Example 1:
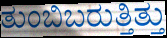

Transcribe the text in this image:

ತುಂಬಿಬರುತ್ತಿತ್ತು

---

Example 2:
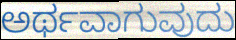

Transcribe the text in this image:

ಅರ್ಥವಾಗುವುದು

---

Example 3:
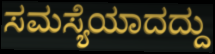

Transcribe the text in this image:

ಸಮಸ್ಯೆಯಾದದ್ದು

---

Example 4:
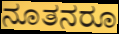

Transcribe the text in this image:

ನೂತನರೂ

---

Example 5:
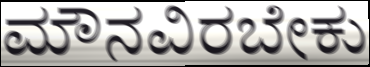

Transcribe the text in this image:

ಮೌನವಿರಬೇಕು